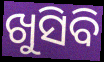
ଖୁସିବି